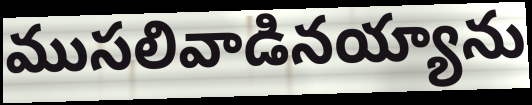
ముసలివాడినయ్యాను